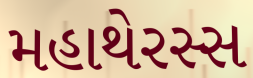
મહાથેરસ્સ